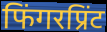
फिंगरप्रिंट